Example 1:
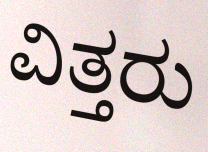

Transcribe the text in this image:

ವಿತ್ತರು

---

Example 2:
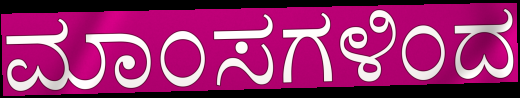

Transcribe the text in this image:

ಮಾಂಸಗಳಿಂದ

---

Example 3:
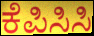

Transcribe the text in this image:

ಕೆಪಿಸಿಸಿ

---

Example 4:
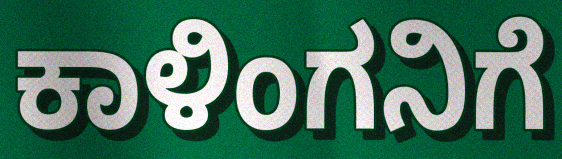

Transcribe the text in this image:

ಕಾಳಿಂಗನಿಗೆ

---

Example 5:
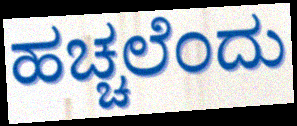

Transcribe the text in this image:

ಹಚ್ಚಲೆಂದು